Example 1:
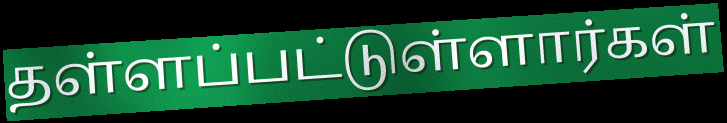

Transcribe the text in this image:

தள்ளப்பட்டுள்ளார்கள்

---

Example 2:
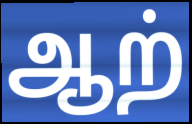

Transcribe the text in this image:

ஆற்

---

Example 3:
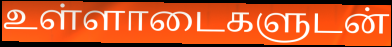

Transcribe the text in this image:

உள்ளாடைகளுடன்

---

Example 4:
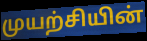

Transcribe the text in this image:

முயற்சியின்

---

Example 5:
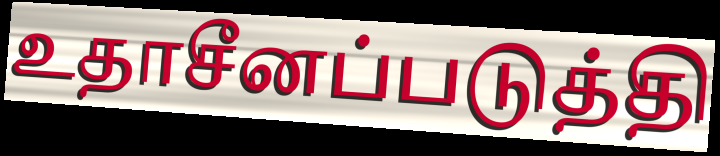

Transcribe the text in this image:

உதாசீனப்படுத்தி